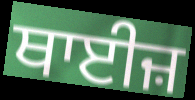
ਥਾਈਜ਼